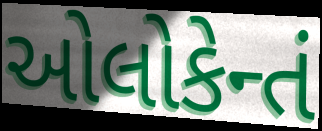
ઓલોકેન્તં